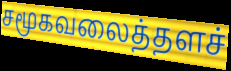
சமூகவலைத்தளச்